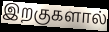
இறகுகளால்